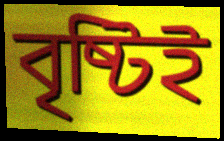
বৃষ্টিই